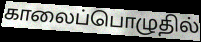
காலைப்பொழுதில்